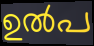
ഉൽപ